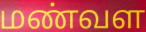
மண்வள